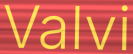
Valvi